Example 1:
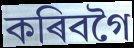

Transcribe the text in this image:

কৰিবগৈ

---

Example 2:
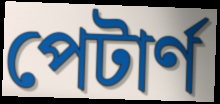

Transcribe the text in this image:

পেটাৰ্ণ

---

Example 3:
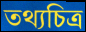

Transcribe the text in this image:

তথ্যচিত্ৰ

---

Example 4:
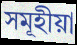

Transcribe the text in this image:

সমূহীয়া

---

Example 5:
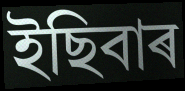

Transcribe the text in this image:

ইছিবাৰ